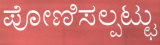
ಪೋಣಿಸಲ್ಪಟ್ಟು